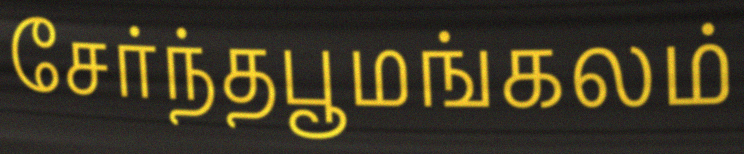
சேர்ந்தபூமங்கலம்